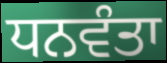
ਧਨਵੰਤਾ